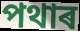
পথাৰ